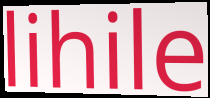
lihile